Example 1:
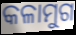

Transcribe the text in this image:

କଳାମୁଗ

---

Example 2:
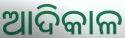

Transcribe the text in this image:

ଆଦିକାଳ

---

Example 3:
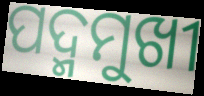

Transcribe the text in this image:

ପଦ୍ମମୁଖୀ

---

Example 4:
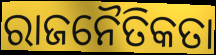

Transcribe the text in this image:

ରାଜନୈତିକତା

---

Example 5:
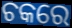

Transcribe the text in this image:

ଚକରେ